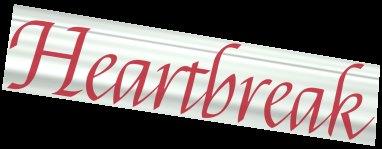
Heartbreak